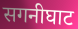
सगनीघाट